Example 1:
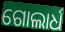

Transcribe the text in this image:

ଗୋଲାର୍ଧ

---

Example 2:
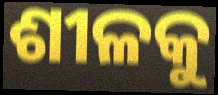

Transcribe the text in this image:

ଶୀଳକୁ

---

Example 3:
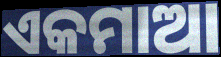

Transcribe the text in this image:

ଏକମାଆ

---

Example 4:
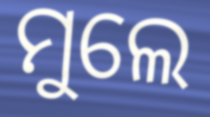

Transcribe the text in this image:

ମୁଲେ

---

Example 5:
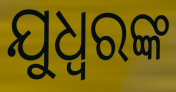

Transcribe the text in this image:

ଯୁଧ୍ଵରଙ୍କ